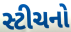
સ્ટીચનો